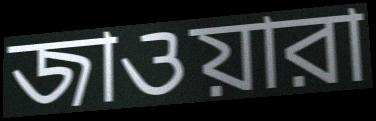
জাওয়ারা